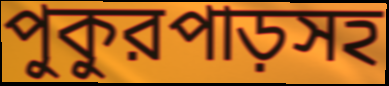
পুকুরপাড়সহ